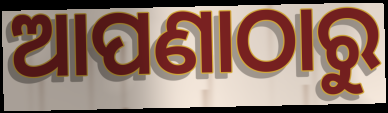
ଆପଣାଠାରୁ